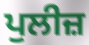
ਪੁਲੀਜ਼